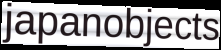
japanobjects